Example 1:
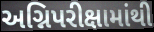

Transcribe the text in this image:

અગ્નિપરીક્ષામાંથી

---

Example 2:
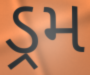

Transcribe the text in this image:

ડ્રમ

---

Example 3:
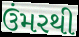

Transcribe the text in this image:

ઉંમરથી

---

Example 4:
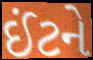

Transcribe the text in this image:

ઈંટને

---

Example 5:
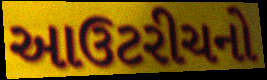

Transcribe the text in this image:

આઉટરીચનો